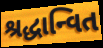
શ્રદ્ધાન્વિત